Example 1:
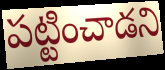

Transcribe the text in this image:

పట్టించాడని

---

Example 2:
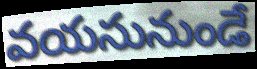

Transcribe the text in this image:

వయసునుండే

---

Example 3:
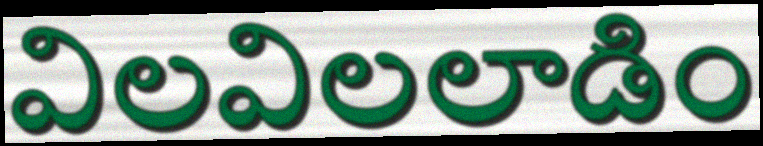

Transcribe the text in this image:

విలవిలలాడిం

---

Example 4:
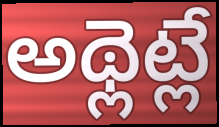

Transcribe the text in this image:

అథ్లెట్లే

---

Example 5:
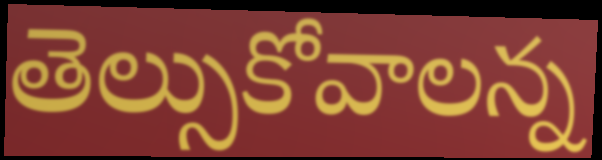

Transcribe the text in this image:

తెల్సుకోవాలన్న